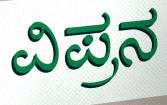
ವಿಪ್ರನ